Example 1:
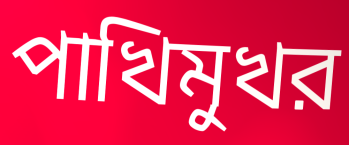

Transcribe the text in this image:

পাখিমুখর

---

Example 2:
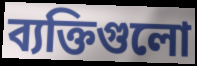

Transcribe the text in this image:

ব্যক্তিগুলো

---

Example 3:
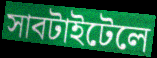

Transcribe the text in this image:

সাবটাইটেলে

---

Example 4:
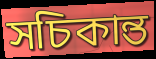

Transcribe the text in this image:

সচিকান্ত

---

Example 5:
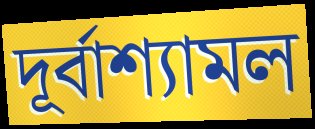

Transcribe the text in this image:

দূর্বাশ্যামল